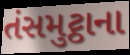
તંસમુટ્ઠાના